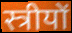
स्त्रीयों